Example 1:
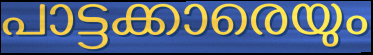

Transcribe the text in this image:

പാട്ടക്കാരെയും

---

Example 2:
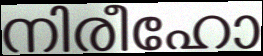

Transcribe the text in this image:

നിരീഹോ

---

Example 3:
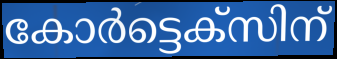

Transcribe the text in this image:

കോർട്ടെക്സിന്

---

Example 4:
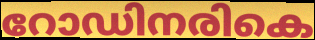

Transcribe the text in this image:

റോഡിനരികെ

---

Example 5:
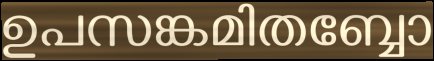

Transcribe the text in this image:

ഉപസങ്കമിതബ്ബോ